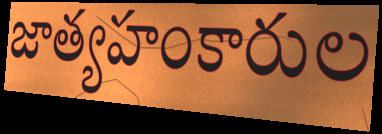
జాత్యహంకారుల